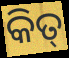
କିତ୍